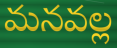
మనవల్ల